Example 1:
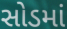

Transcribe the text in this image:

સોડમાં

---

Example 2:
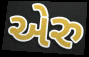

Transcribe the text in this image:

એરુ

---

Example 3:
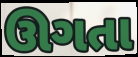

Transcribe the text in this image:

ઊગતા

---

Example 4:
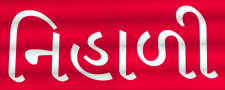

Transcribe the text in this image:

નિહાળી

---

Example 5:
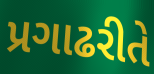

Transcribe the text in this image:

પ્રગાઢરીતે